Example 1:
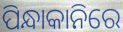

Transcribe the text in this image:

ପିନ୍ଧାକାନିରେ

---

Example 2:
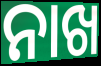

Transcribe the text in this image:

ନାଖ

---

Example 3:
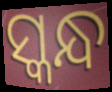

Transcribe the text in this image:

ସ୍କନ୍ଧ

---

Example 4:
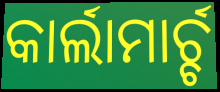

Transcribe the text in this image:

କାର୍ଲାମାର୍ଚ୍ଚ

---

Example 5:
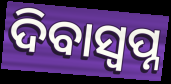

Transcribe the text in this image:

ଦିବାସ୍ଵପ୍ନ